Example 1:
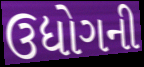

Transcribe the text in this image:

ઉદ્યોગની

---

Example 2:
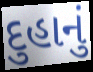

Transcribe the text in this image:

દુહાનું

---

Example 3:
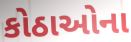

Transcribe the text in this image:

કોઠાઓના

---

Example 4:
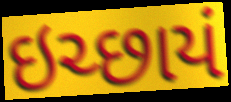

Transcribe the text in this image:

ઇચ્છાયં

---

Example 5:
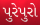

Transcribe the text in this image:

પુરેપુરો